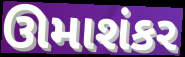
ઊમાશંકર